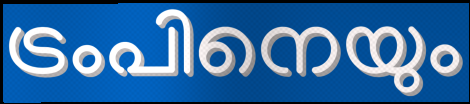
ട്രംപിനെയും